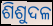
ଶିଶୁଦଳ